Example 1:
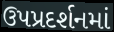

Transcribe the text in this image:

ઉપપ્રદર્શનમાં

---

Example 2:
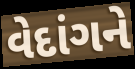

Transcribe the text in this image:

વેદાંગને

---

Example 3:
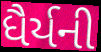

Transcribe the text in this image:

ધૈર્યની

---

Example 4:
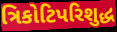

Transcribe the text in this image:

ત્રિકોટિપરિશુદ્ધ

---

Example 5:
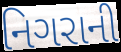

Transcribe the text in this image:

નિગરાની